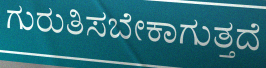
ಗುರುತಿಸಬೇಕಾಗುತ್ತದೆ